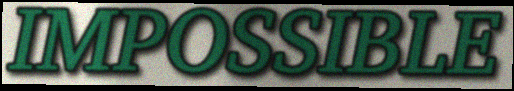
IMPOSSIBLE